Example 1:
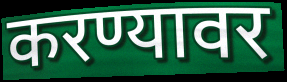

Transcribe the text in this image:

करण्यावर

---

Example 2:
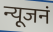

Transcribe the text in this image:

न्यूजनं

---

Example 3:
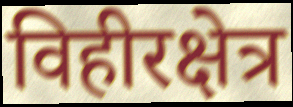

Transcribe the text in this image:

विहीरक्षेत्र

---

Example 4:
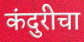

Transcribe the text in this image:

कंदुरीचा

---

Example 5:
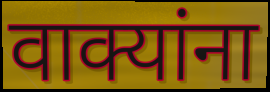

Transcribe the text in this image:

वाक्यांना